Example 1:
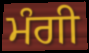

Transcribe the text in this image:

ਮੰਗੀ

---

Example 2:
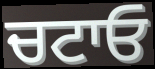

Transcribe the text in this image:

ਚਟਾਓ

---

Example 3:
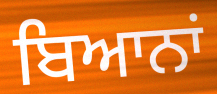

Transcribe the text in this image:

ਬਿਆਨਾਂ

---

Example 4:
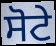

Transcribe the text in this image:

ਸੋਟੇ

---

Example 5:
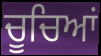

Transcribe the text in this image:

ਚੂਚਿਆਂ